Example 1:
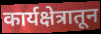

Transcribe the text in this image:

कार्यक्षेत्रातून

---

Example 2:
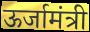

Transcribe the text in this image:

ऊर्जामंत्री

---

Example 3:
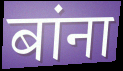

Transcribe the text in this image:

बांना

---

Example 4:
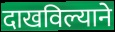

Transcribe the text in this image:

दाखविल्याने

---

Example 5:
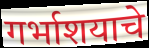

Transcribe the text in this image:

गर्भाशयाचे